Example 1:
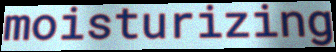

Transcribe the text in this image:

moisturizing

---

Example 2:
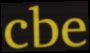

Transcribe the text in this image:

cbe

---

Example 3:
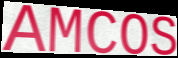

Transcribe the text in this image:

AMCOS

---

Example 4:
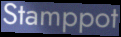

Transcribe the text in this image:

Stamppot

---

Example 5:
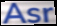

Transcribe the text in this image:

Asr